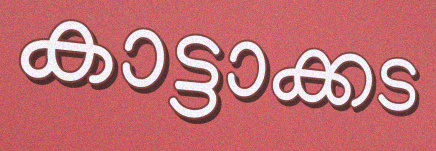
കാട്ടാക്കട